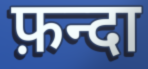
फ़न्दा